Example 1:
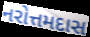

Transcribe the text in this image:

નરોત્તમદાસ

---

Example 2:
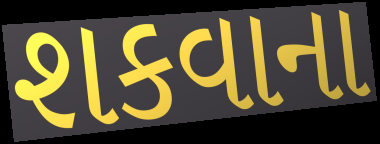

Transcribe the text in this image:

શકવાના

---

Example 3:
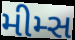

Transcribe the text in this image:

મીમ્સ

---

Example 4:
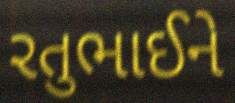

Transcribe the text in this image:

રતુભાઈને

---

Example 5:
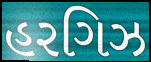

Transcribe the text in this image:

હરગિઝ